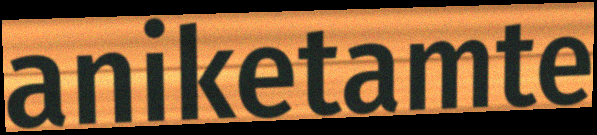
aniketamte